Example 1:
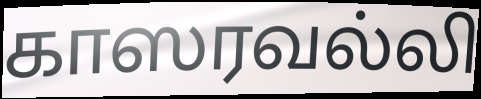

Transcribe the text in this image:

காஸரவல்லி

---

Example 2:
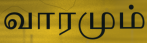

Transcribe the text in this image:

வாரமும்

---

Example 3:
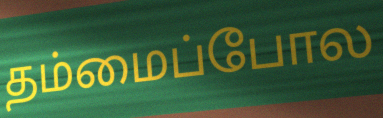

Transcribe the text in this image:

தம்மைப்போல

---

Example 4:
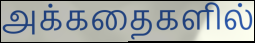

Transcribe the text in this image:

அக்கதைகளில்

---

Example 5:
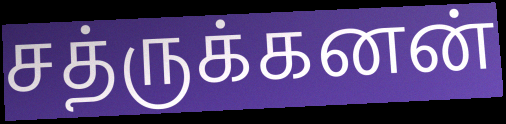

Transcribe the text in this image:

சத்ருக்கனன்